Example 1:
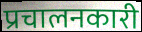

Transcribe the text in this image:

प्रचालनकारी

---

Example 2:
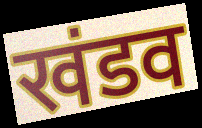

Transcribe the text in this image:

खंडव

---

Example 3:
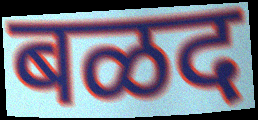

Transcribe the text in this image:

बळद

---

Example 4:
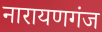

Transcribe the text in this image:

नारायणगंज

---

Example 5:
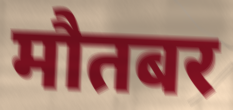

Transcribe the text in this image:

मौतबर